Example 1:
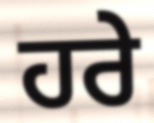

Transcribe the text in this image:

ਹਰੇ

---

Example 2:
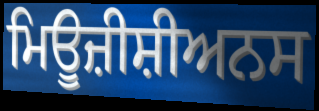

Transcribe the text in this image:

ਮਿਊਜ਼ੀਸ਼ੀਅਨਸ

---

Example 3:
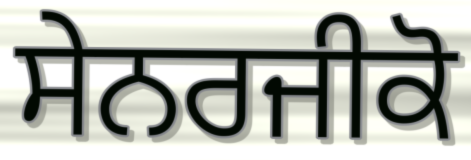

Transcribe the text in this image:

ਸੇਨਰਜੀਕੋ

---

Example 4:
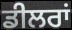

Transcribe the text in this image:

ਡੀਲਰਾਂ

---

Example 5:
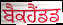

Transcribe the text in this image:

ਬੈਕਹੈਂਡਡ